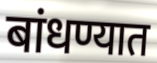
बांधण्यात